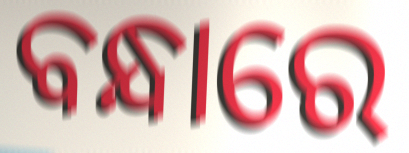
ବନ୍ଧାରେ